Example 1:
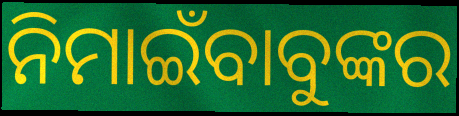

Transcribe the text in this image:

ନିମାଇଁବାବୁଙ୍କର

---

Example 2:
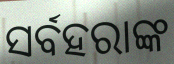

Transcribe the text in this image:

ସର୍ବହରାଙ୍କ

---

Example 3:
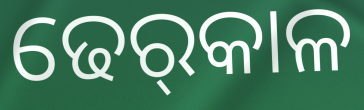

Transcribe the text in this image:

ଢେର୍‌କାଳ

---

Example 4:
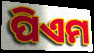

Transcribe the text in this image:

ପିଏମ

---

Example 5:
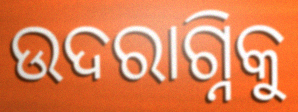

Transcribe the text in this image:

ଉଦରାଗ୍ନିକୁ